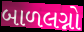
બાળલગ્નો